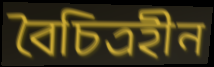
বৈচিত্রহীন